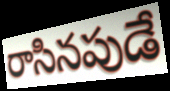
రాసినపుడే